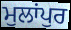
ਮੁਲਾਂਪੁਰ